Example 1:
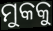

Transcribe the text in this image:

ମୁକକୁ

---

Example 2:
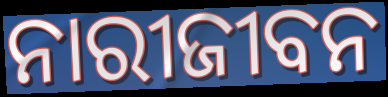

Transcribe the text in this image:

ନାରୀଜୀବନ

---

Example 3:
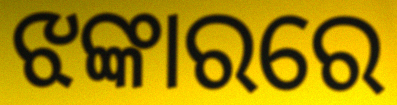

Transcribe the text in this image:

ଝଙ୍କାରରେ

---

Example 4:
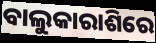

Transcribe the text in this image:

ବାଲୁକାରାଶିରେ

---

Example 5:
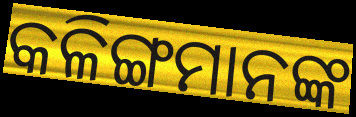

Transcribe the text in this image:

କଳିଙ୍ଗମାନଙ୍କ